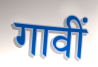
गावीं